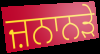
ਜ਼ਨਾਨੜੇ